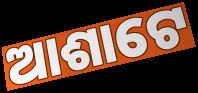
ଆଶାଟେ